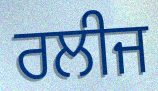
ਰਲੀਜ